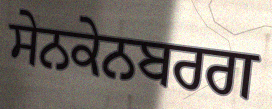
ਸੇਨਕੇਨਬਰਗ